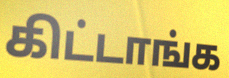
கிட்டாங்க